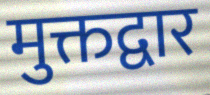
मुक्तद्वार